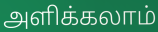
அளிக்கலாம்